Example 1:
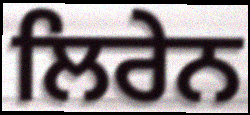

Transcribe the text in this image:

ਲਿਰੇਨ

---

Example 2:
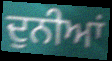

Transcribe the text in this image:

ਦੁਨੀਆਂ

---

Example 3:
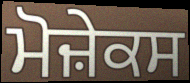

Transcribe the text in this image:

ਮੋਜ਼ੇਕਸ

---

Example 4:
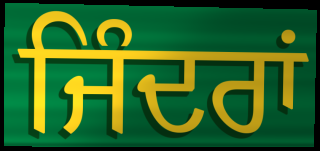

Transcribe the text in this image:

ਜਿੰਦਰਾਂ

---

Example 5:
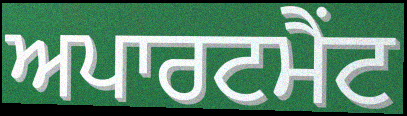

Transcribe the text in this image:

ਅਪਾਰਟਮੈਂਟ